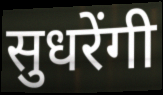
सुधरेंगी